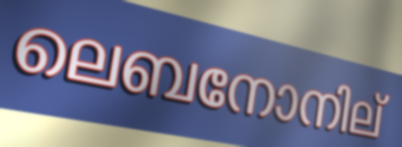
ലെബനോനില്